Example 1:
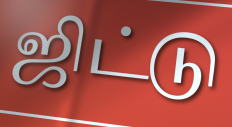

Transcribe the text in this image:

ஜிட்டு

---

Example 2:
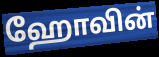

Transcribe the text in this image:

ஹோவின்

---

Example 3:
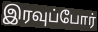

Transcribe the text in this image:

இரவுப்போர்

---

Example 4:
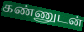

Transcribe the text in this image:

கண்ணுடன்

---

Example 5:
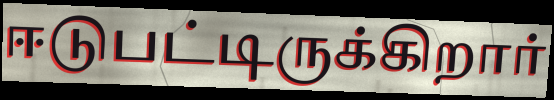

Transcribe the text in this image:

ஈடுபட்டிருக்கிறார்